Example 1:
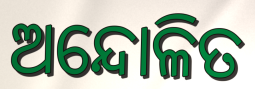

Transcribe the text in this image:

ଅନ୍ଦୋଳିତ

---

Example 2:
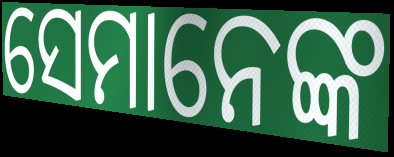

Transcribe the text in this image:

ସେମାନେଙ୍କ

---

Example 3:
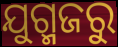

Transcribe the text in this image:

ଯୁଗ୍ମଜରୁ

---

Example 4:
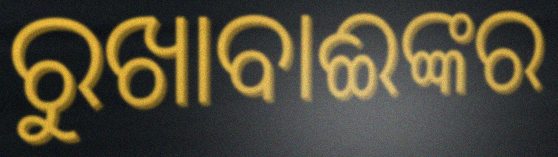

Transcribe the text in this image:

ରୁଖାବାଈଙ୍କର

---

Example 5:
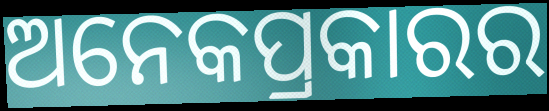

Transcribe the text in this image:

ଅନେକପ୍ରକାରର